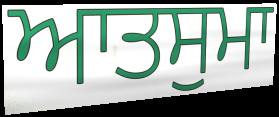
ਆਤਸੁਮਾ